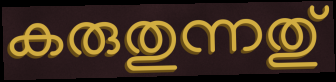
കരുതുന്നതു്